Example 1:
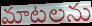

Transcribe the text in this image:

మాటలను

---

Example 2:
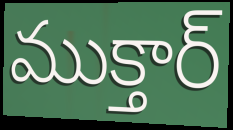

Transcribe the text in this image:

ముక్తార్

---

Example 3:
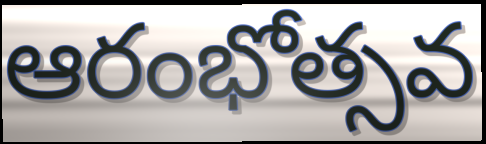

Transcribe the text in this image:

ఆరంభోత్సవ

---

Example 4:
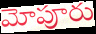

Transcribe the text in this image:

మోపూరు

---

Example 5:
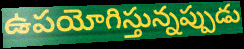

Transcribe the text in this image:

ఉపయోగిస్తున్నప్పుడు